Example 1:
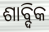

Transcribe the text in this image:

ଶାବ୍ଦିକ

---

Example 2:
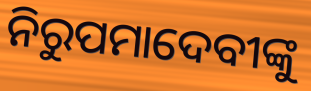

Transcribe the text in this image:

ନିରୁପମାଦେବୀଙ୍କୁ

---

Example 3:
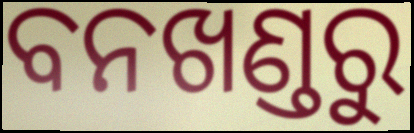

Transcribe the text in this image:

ବନଖଣ୍ଡରୁ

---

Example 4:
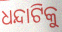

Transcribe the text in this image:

ଧନ୍ଦାଟିକୁ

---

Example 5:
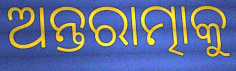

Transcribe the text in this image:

ଅନ୍ତରାତ୍ମାକୁ